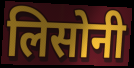
लिसोनी